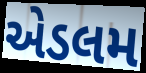
એડલમ